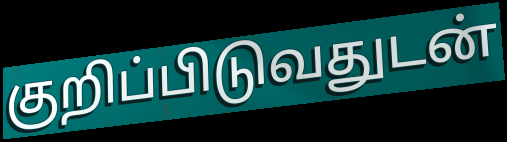
குறிப்பிடுவதுடன்